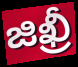
జిఖ్రీ